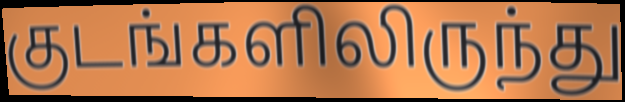
குடங்களிலிருந்து